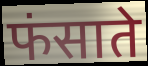
फंसाते